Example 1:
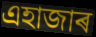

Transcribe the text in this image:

এহাজাৰ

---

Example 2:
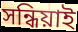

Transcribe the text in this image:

সন্ধিয়াই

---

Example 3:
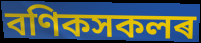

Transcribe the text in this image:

বণিকসকলৰ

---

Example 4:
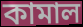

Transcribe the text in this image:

কামাল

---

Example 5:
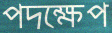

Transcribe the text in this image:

পদক্ষেপ